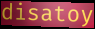
disatoy